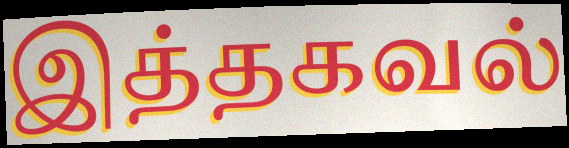
இத்தகவல்